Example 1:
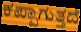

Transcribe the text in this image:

ಕಪ್ಪಾಗುತ್ತದೆ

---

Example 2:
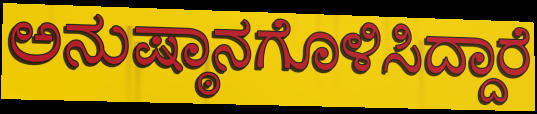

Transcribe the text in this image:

ಅನುಷ್ಠಾನಗೊಳಿಸಿದ್ದಾರೆ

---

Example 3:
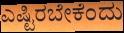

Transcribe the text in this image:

ಎಷ್ಟಿರಬೇಕೆಂದು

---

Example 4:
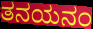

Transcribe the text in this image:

ತನಯನಂ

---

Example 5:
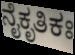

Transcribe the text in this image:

ನೈಕೃತಿಕಃ